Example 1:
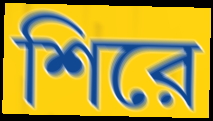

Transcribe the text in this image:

শিরে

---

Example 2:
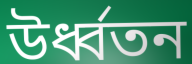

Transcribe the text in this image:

উর্ধ্বতন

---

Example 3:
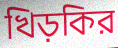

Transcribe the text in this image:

খিড়কির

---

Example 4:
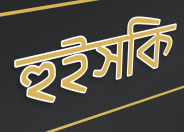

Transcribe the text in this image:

হুইসকি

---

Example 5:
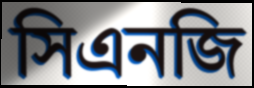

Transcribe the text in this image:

সিএনজি